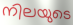
നിലയുടെ